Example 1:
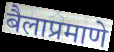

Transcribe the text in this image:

बैलाप्रमाणे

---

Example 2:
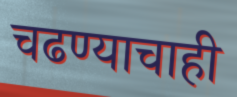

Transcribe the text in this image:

चढण्याचाही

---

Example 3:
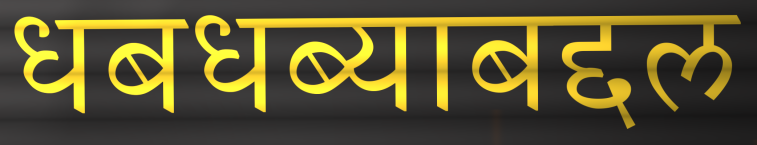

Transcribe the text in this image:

धबधब्याबद्दल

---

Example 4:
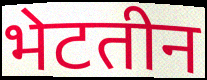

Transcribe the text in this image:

भेटतीन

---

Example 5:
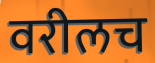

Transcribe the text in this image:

वरीलच